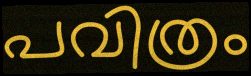
പവിത്രം